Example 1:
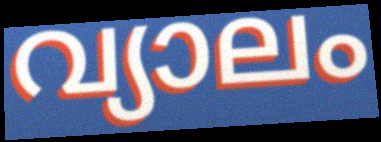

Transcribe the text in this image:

വ്യാലം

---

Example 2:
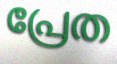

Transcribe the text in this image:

പ്രേത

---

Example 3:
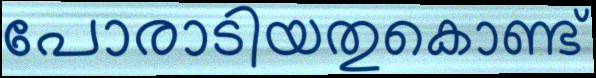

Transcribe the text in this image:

പോരാടിയതുകൊണ്ട്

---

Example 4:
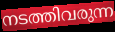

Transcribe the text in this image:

നടത്തിവരുന്ന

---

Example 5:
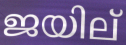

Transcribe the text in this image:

ജയില്